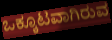
ಒಕ್ಕೂಟವಾಗಿರುವ